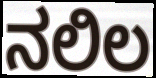
ನಲಿಲ